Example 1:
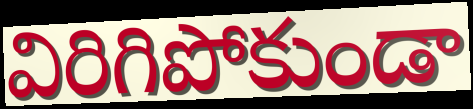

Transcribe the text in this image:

విరిగిపోకుండా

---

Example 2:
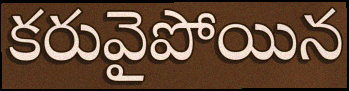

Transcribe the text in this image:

కరువైపోయిన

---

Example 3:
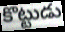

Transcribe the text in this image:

కొట్టుడు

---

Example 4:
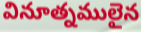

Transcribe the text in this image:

వినూత్నములైన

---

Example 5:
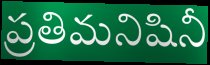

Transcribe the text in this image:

ప్రతిమనిషినీ